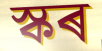
স্কৰ